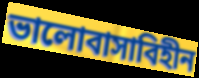
ভালোবাসাবিহীন